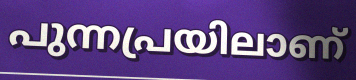
പുന്നപ്രയിലാണ്